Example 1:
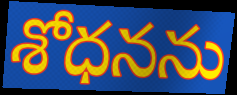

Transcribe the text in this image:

శోధనను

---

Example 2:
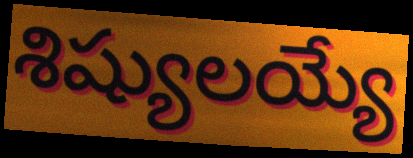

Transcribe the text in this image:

శిష్యులయ్యే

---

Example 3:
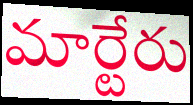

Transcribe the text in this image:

మార్టేరు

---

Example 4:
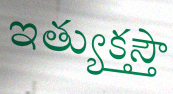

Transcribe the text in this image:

ఇత్యుక్తస్తౌ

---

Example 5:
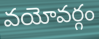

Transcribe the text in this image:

వయోవర్గం